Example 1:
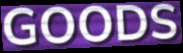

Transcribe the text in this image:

GOODS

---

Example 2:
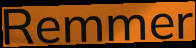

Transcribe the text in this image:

Remmer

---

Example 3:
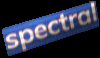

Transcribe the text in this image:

spectral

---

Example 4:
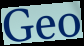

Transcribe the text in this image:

Geo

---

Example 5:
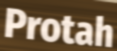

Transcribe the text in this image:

Protah